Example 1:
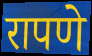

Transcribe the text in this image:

रापणे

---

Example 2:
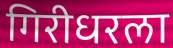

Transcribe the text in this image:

गिरीधरला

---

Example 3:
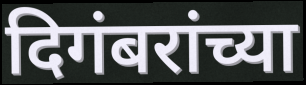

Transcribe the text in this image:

दिगंबरांच्या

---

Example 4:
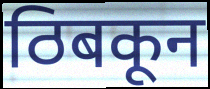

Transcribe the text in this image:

ठिबकून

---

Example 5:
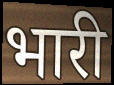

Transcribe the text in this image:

भारी